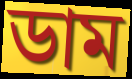
ডাম